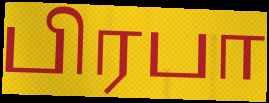
பிரபா